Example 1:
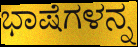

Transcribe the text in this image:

ಭಾಷೆಗಳನ್ನ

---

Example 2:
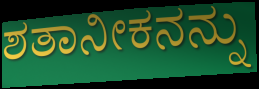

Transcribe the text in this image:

ಶತಾನೀಕನನ್ನು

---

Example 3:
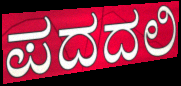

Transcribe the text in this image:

ಪದದಲಿ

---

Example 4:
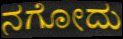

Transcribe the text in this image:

ನಗೋದು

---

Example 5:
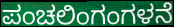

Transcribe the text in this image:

ಪಂಚಲಿಂಗಂಗಳನೆ